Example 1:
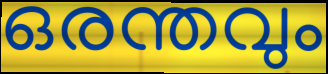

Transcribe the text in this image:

ഒരന്തവും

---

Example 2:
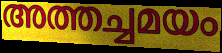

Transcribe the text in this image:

അത്തച്ചമയം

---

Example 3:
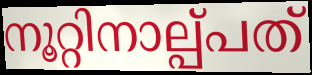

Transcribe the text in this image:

നൂറ്റിനാല്പ്പത്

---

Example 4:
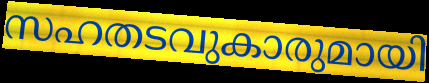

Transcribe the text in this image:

സഹതടവുകാരുമായി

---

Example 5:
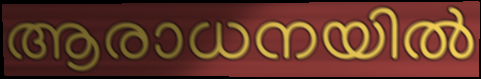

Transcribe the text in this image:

ആരാധനയിൽ